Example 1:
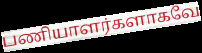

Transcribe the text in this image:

பணியாளர்களாகவே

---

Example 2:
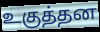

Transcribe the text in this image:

உகுத்தன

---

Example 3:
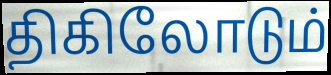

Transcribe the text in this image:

திகிலோடும்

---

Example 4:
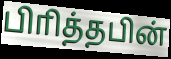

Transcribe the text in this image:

பிரித்தபின்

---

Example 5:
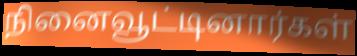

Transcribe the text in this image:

நினைவூட்டினார்கள்